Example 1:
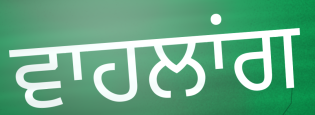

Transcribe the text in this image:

ਵਾਹਲਾਂਗ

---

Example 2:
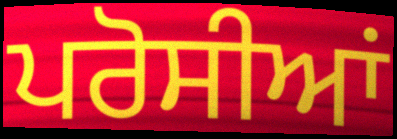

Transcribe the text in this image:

ਪਰੋਸੀਆਂ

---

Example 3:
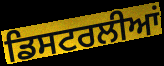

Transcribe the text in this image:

ਡਿਸਟਰਲੀਆਂ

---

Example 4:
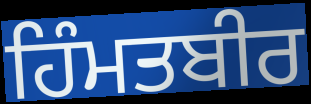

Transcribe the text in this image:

ਹਿੰਮਤਬੀਰ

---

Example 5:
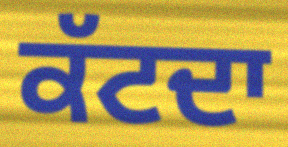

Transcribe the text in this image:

ਕੱਟਦਾ